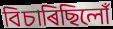
বিচাৰিছিলোঁ